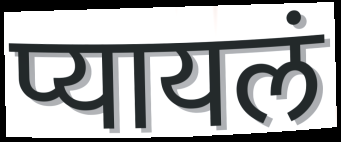
प्यायलं